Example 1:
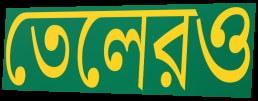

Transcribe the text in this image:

তেলেরও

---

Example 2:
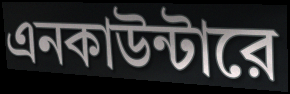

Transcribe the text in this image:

এনকাউন্টারে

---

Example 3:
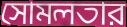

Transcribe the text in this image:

সোমলতার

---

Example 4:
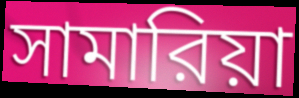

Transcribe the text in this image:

সামারিয়া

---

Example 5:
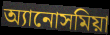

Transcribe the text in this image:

অ্যানোসমিয়া